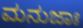
ಮನುಜಾಃ